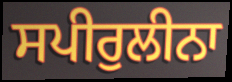
ਸਪੀਰੁਲੀਨਾ